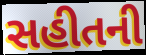
સહીતની